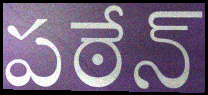
పఠేన్